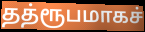
தத்ரூபமாகச்